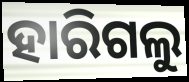
ହାରିଗଲୁ